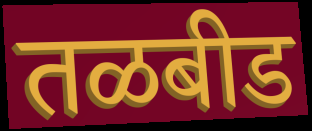
तळबीड